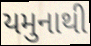
યમુનાથી